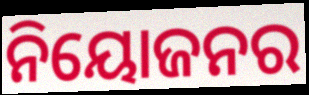
ନିୟୋଜନର